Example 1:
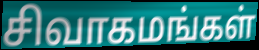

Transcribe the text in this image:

சிவாகமங்கள்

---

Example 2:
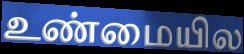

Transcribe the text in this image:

உண்மையில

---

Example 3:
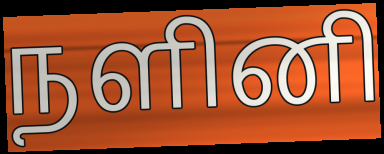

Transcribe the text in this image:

நளினி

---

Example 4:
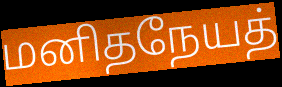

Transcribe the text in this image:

மனிதநேயத்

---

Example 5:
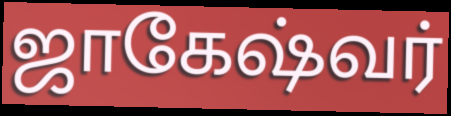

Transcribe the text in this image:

ஜாகேஷ்வர்